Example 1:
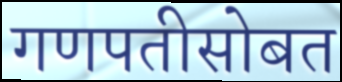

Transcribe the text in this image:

गणपतीसोबत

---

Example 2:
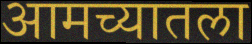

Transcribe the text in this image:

आमच्यातला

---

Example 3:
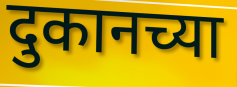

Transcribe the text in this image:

दुकानच्या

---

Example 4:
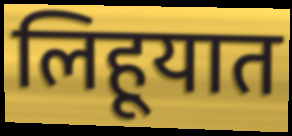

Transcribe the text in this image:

लिहूयात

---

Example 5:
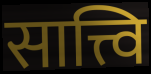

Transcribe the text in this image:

सात्त्वि